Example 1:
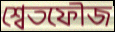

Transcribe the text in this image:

শ্বেতফৌজ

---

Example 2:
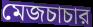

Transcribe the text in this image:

মেজচাচার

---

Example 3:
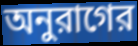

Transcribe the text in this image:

অনুরাগের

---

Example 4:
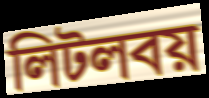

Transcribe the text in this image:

লিটলবয়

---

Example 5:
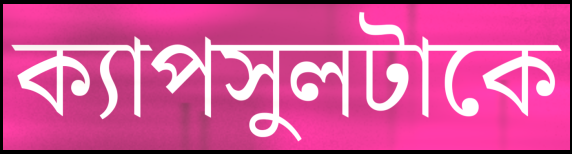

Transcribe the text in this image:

ক্যাপসুলটাকে